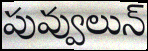
పువ్వులున్